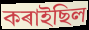
কৰাইছিল